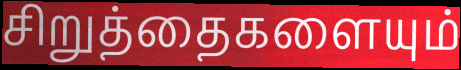
சிறுத்தைகளையும்